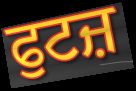
ਫੁਟਜ਼